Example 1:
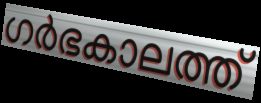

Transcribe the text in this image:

ഗർഭകാലത്ത്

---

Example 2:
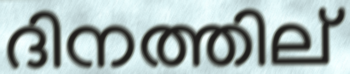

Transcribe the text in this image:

ദിനത്തില്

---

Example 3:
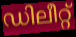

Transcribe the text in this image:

ഡിലീറ്റ്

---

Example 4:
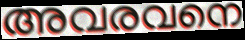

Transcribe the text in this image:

അവരവനെ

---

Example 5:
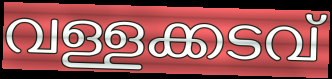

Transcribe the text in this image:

വള്ളക്കടവ്